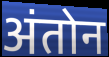
अंतोन